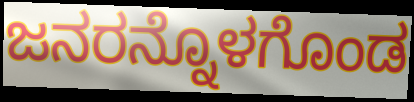
ಜನರನ್ನೊಳಗೊಂಡ